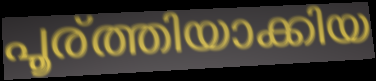
പൂര്ത്തിയാക്കിയ